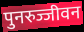
पुनरुज्जीवन